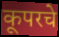
कूपरचे